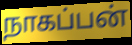
நாகப்பன்